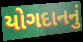
યોગદાનનું